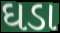
ઘડા